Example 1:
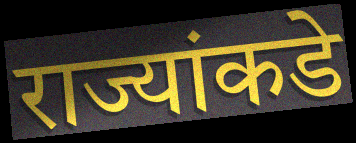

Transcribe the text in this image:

राज्यांकडे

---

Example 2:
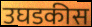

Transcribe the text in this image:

उघडकीस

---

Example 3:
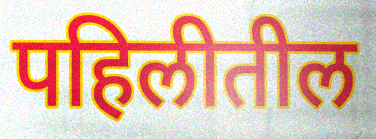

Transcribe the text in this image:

पहिलीतील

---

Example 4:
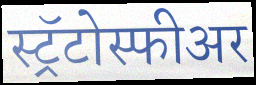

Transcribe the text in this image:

स्ट्रॅटोस्फीअर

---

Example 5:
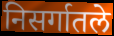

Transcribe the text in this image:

निसर्गातले